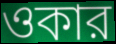
ওকার